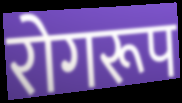
रोगरूप